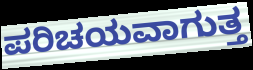
ಪರಿಚಯವಾಗುತ್ತ